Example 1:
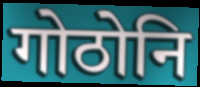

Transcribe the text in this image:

गोठोनि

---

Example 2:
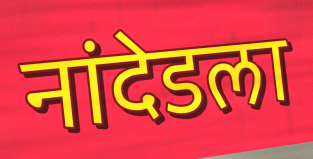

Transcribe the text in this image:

नांदेडला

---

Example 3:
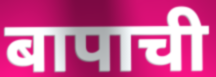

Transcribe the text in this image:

बापाची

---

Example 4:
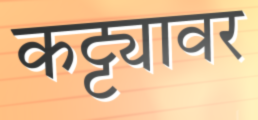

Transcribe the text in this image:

कट्ट्यावर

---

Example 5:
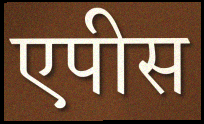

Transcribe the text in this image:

एपीस